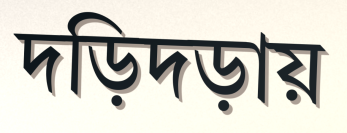
দড়িদড়ায়